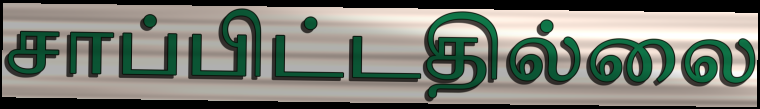
சாப்பிட்டதில்லை